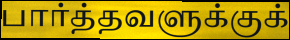
பார்த்தவளுக்குக்